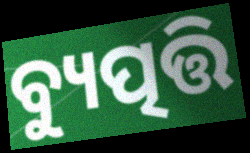
ବ୍ୟୁତ୍ପତ୍ତି